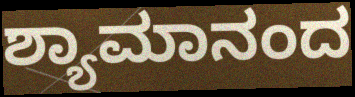
ಶ್ಯಾಮಾನಂದ